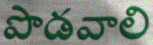
పొడవాలి